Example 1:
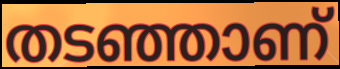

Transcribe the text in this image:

തടഞ്ഞാണ്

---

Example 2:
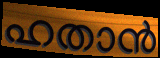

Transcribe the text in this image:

ഹതാൻ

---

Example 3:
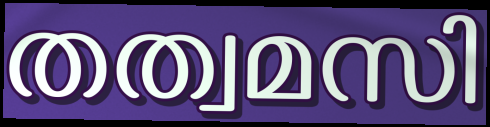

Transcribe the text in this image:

തത്വമസി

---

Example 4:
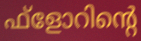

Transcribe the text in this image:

ഫ്ളോറിന്റെ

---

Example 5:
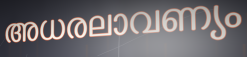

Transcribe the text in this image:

അധരലാവണ്യം